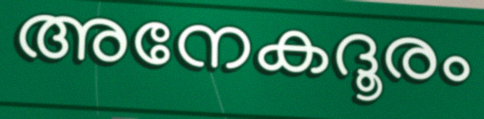
അനേകദൂരം